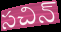
సచిన్